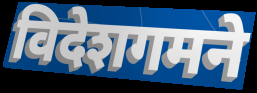
विदेशगमने